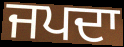
ਜਪਦਾ